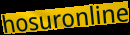
hosuronline